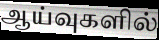
ஆய்வுகளில்